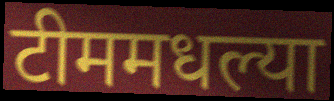
टीममधल्या